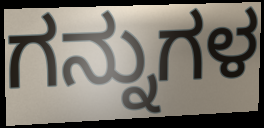
ಗನ್ನುಗಳ